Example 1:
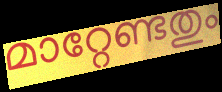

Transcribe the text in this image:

മാറ്റേണ്ടതും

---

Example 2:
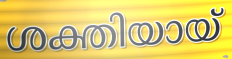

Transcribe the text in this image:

ശക്തിയായ്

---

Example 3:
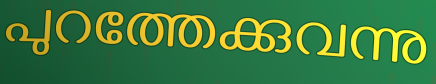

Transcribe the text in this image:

പുറത്തേക്കുവന്നു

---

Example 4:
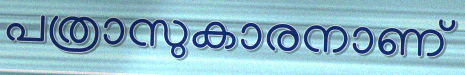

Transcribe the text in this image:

പത്രാസുകാരനാണ്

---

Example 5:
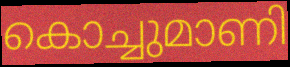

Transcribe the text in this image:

കൊച്ചുമാണി